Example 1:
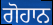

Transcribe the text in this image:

ਗੋਹਾਨ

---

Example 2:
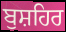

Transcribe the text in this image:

ਬੁਸ਼ਹਿਰ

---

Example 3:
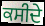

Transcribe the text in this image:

ਕਸੀਦੇ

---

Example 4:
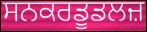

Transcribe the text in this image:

ਸਨਕਰਡੂਡਲਜ਼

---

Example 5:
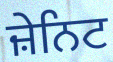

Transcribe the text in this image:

ਜ਼ੇਨਿਟ